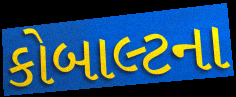
કોબાલ્ટના